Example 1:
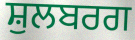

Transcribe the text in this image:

ਸ਼ੁਲਬਰਗ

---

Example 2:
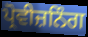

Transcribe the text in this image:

ਪ੍ਰੋਵੀਜ਼ਨਿੰਗ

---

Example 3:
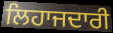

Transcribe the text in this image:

ਲਿਹਾਜਦਾਰੀ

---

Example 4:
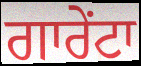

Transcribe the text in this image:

ਗਾਰੇਂਟਾ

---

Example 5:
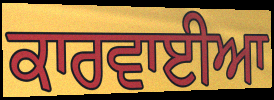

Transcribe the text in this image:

ਕਾਰਵਾਈਆ